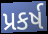
પ્રકર્ષ